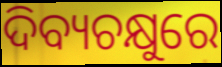
ଦିବ୍ୟଚକ୍ଷୁରେ